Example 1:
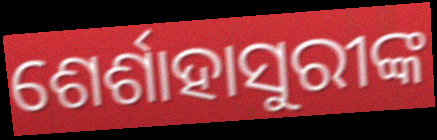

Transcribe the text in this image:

ଶେର୍ଶାହାସୁରୀଙ୍କ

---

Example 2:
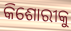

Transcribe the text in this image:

କିଶୋରୀକୁ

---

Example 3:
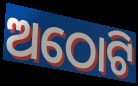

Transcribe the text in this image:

ଅଠୋଟି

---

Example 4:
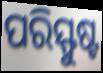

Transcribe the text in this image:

ପରିସ୍ଫୁଷ୍ଟ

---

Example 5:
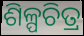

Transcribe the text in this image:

ଶିଳ୍ପଚିତ୍ର